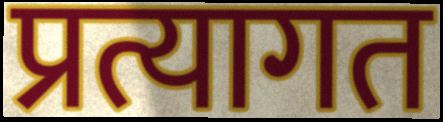
प्रत्यागत